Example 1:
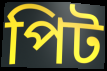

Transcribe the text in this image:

পিট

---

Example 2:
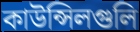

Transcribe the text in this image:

কাউন্সিলগুলি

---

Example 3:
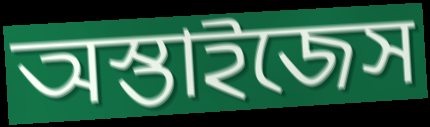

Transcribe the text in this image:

অস্তাইজেস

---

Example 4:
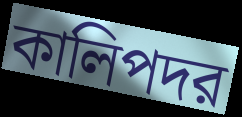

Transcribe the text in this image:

কালিপদর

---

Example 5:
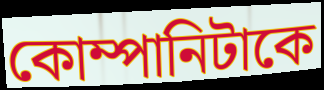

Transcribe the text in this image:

কোম্পানিটাকে